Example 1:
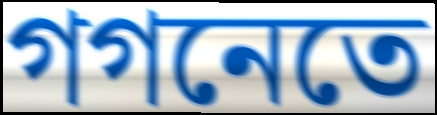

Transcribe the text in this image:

গগনেতে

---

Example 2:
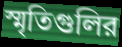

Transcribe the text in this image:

স্মৃতিগুলির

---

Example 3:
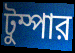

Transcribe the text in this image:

টুম্পার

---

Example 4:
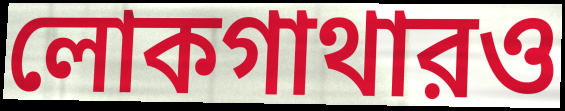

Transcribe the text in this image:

লোকগাথারও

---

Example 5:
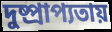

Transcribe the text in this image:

দুষ্প্রাপ্যতায়